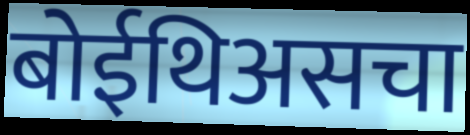
बोईथिअसचा